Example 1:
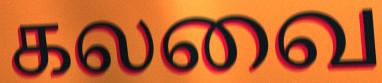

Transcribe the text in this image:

கலவை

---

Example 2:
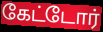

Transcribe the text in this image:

கேட்டோர்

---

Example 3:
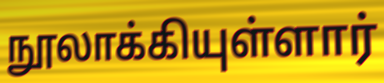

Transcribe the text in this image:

நூலாக்கியுள்ளார்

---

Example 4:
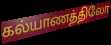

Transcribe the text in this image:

கல்யாணத்திலோ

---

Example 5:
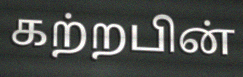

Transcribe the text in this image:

கற்றபின்